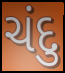
ચંદુ